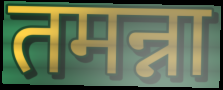
तमन्ना